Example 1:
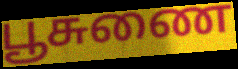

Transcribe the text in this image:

பூசுணை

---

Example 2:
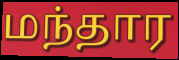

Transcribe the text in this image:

மந்தார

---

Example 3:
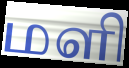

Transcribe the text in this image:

மளி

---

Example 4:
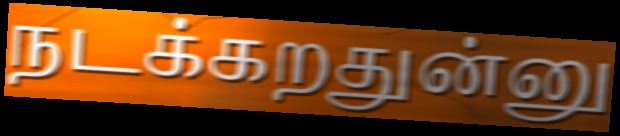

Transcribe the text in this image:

நடக்கறதுன்னு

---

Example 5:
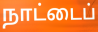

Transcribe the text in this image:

நாட்டைப்